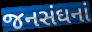
જનસંઘનાં